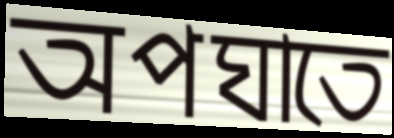
অপঘাতে